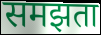
समझता